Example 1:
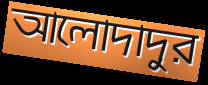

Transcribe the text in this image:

আলোদাদুর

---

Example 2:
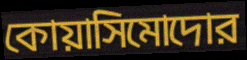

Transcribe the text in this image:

কোয়াসিমোদোর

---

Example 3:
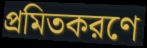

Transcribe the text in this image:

প্রমিতকরণে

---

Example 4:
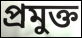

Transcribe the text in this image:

প্রমুক্ত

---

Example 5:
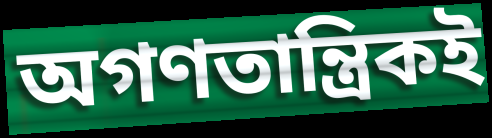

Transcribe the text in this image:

অগণতান্ত্রিকই